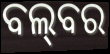
ବଲ୍‌ବର